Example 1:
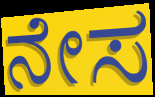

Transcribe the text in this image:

ನೇಸ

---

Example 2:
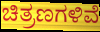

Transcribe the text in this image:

ಚಿತ್ರಣಗಳಿವೆ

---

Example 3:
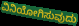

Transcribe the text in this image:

ವಿನಿಯೋಗಿಸುವುದು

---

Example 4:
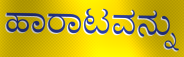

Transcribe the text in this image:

ಹಾರಾಟವನ್ನು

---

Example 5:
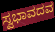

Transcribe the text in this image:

ಸ್ವಭಾವದವ